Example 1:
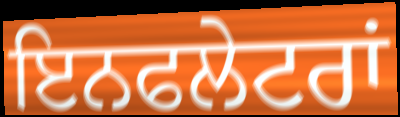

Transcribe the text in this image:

ਇਨਫਲੇਟਰਾਂ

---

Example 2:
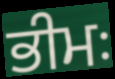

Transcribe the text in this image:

ਭੀਮਃ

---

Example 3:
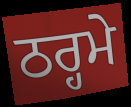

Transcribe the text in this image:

ਠਰ੍ਹਮੇ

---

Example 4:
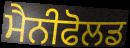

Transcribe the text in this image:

ਮੈਨੀਫੋਲਡ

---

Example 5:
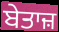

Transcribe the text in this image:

ਬੇਤਾਜ਼